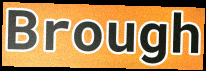
Brough